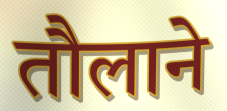
तौलाने